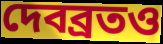
দেবব্রতও